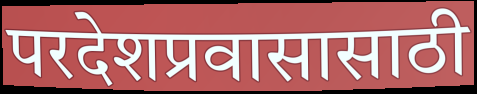
परदेशप्रवासासाठी